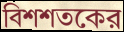
বিশশতকের